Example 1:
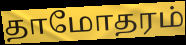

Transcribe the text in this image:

தாமோதரம்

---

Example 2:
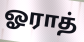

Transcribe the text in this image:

ஓராத்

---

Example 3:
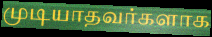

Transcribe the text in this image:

முடியாதவர்களாக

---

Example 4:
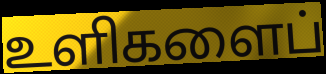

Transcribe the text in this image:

உளிகளைப்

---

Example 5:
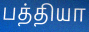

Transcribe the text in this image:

பத்தியா